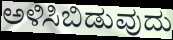
ಅಳಿಸಿಬಿಡುವುದು